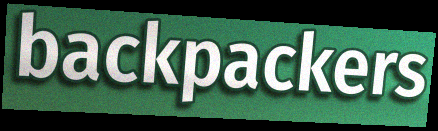
backpackers